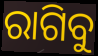
ରାଗିବୁ